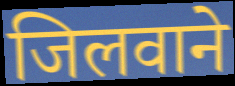
जिलवाने